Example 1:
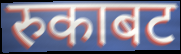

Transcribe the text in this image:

रुकाबट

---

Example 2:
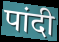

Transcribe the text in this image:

पांदी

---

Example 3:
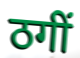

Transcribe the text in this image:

ठगीं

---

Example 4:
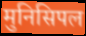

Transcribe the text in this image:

मुनिसिपल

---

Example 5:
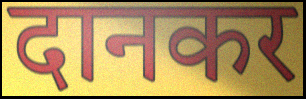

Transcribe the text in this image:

दानकर